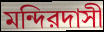
মন্দিরদাসী